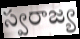
స్వరాజ్య